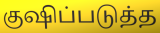
குஷிப்படுத்த